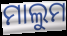
ମାଲୁମ